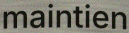
maintien